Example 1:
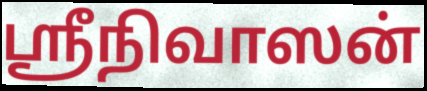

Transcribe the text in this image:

ஸ்ரீநிவாஸன்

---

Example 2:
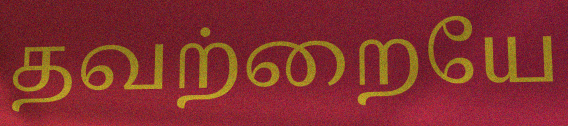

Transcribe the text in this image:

தவற்றையே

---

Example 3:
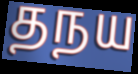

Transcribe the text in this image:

தநய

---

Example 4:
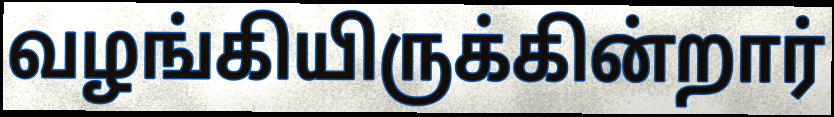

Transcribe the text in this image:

வழங்கியிருக்கின்றார்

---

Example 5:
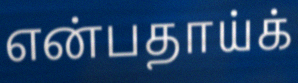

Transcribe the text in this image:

என்பதாய்க்